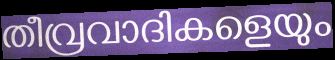
തീവ്രവാദികളെയും